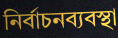
নির্বাচনব্যবস্থা